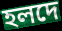
হলদে